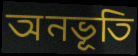
অনভূতি